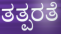
ತತ್ಪರತೆ